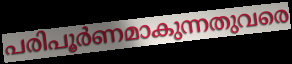
പരിപൂർണമാകുന്നതുവരെ